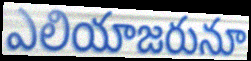
ఎలియాజరునూ